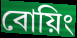
বোয়িং